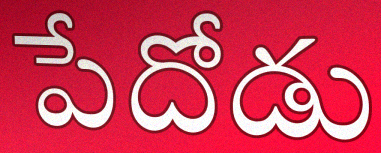
పేదోడు